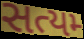
સત્યમ્‍